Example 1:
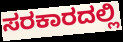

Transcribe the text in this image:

ಸರಕಾರದಲ್ಲಿ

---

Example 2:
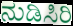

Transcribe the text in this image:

ನುಡಿಸಿರಿ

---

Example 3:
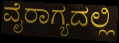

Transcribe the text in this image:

ವೈರಾಗ್ಯದಲ್ಲಿ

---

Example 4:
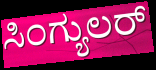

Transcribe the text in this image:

ಸಿಂಗ್ಯುಲರ್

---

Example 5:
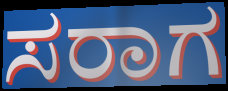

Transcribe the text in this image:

ಸರಾಗ